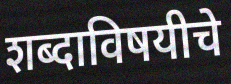
शब्दाविषयीचे